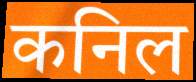
कनिल